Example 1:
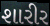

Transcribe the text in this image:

શારીર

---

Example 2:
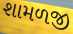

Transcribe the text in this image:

શામળજી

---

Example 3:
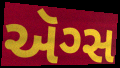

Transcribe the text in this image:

ઍગ્સ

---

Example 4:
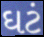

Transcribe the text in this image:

ઘટં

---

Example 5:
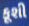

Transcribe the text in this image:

કૂશી